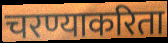
चरण्याकरिता